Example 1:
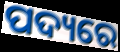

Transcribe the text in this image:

ପଦ୍ୟରେ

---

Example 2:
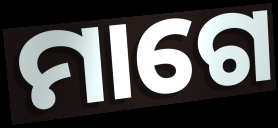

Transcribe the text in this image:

ମାଗେ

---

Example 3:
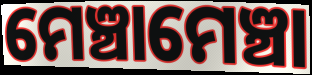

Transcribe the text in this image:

ମେଞ୍ଚାମେଞ୍ଚା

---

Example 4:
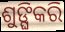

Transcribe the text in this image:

ଶୁଙ୍ଘିକରି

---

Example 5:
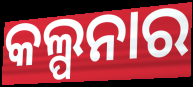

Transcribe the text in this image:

କଲ୍ପନାର